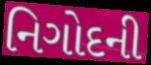
નિગોદની